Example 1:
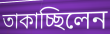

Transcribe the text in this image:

তাকাচ্ছিলেন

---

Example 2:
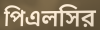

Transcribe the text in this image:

পিএলসির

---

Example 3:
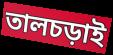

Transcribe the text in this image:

তালচড়াই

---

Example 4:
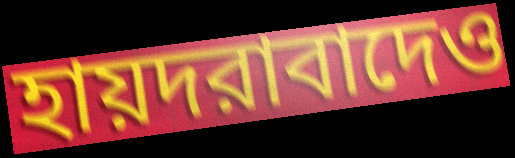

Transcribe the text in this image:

হায়দরাবাদেও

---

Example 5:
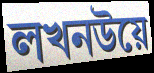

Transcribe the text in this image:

লখনউয়ে